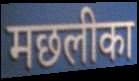
मछलीका